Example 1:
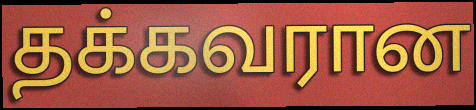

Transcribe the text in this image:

தக்கவரான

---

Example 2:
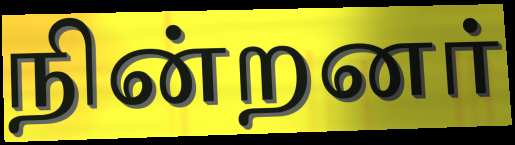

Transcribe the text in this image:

நின்றனர்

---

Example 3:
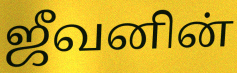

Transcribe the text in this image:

ஜீவனின்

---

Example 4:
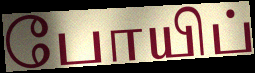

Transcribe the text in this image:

போயிப்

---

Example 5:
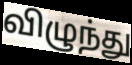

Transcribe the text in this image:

விழுந்து